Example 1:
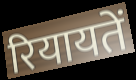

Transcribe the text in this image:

रियायतें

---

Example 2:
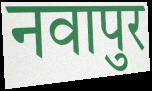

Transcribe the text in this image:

नवापुर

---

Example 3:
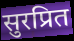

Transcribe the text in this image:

सुरप्रित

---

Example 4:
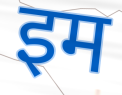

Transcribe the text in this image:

इम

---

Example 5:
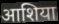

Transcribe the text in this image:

आशिया